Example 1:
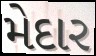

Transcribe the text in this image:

મેદાર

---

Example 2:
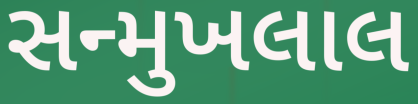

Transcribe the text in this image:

સન્મુખલાલ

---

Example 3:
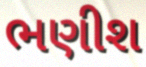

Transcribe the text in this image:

ભણીશ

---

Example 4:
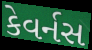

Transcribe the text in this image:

કેવર્નસ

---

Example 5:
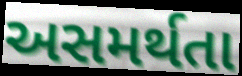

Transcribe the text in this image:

અસમર્થતા